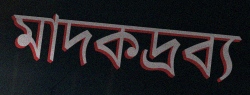
মাদকদ্রব্য